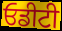
ਓਡੀਟੀ